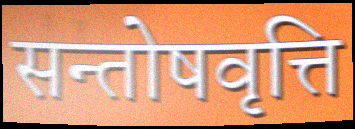
सन्तोषवृत्ति